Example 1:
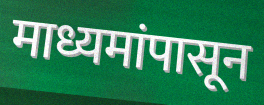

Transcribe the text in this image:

माध्यमांपासून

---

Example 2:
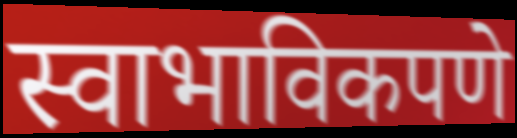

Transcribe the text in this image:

स्वाभाविकपणे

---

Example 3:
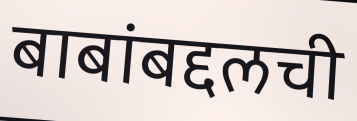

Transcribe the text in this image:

बाबांबद्दलची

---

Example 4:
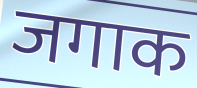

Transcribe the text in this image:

जगाक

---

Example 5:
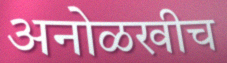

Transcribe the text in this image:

अनोळखीच